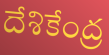
దేశికేంద్ర